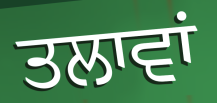
ਤਲਾਵਾਂ